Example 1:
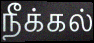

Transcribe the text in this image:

நீக்கல்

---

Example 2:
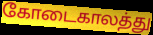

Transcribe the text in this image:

கோடைகாலத்து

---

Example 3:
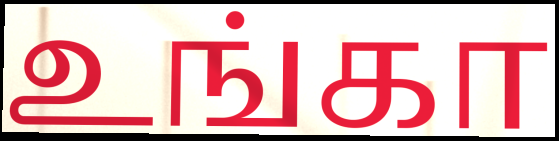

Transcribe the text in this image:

உங்கா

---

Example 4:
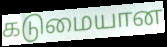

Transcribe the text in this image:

கடுமையான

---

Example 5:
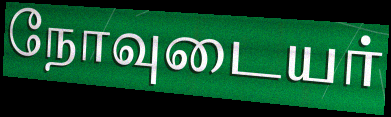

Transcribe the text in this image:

நோவுடையர்